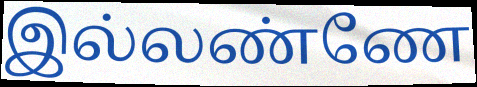
இல்லண்ணே